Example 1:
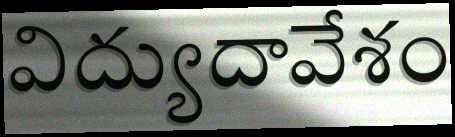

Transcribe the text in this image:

విద్యుదావేశం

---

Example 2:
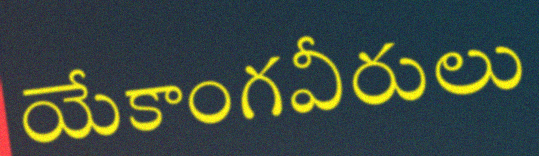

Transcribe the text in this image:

యేకాంగవీరులు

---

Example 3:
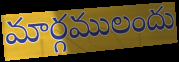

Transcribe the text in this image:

మార్గములందు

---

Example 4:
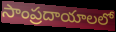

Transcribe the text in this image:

సాంప్రదాయాలలో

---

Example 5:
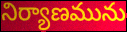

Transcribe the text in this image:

నిర్యాణమును